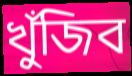
খুঁজিব